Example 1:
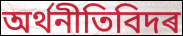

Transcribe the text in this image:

অৰ্থনীতিবিদৰ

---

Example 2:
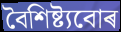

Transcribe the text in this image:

বৈশিষ্ট্যবোৰ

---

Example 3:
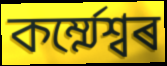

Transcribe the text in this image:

কৰ্ম্মেশ্বৰ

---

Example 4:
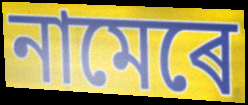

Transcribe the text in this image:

নামেৰে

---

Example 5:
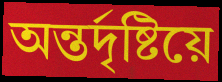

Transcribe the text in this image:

অন্তৰ্দৃষ্টিয়ে